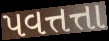
પવત્તત્તા